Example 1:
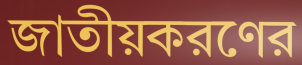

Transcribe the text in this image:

জাতীয়করণের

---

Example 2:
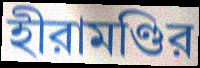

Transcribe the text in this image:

হীরামণ্ডির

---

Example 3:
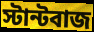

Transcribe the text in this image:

স্টান্টবাজ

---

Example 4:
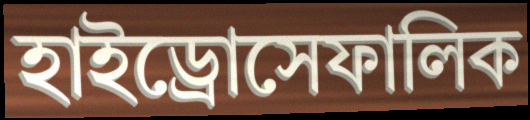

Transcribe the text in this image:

হাইড্রোসেফালিক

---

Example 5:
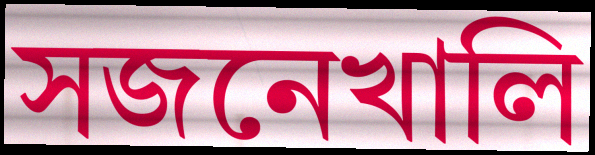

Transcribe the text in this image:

সজনেখালি